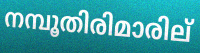
നമ്പൂതിരിമാരില്